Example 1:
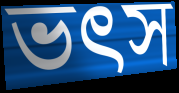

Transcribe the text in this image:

ভৎস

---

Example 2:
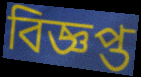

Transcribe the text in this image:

বিজ্ঞপ্ত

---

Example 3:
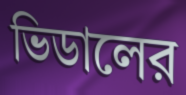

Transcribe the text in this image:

ভিডালের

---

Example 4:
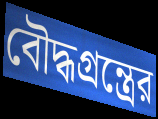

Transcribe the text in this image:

বৌদ্ধগ্রন্ত্রের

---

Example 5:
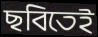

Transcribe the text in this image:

ছবিতেই